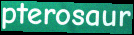
pterosaur